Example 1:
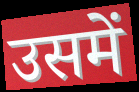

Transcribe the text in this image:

उसमें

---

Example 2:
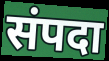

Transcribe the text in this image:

संपदा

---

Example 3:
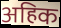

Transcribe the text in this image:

अहिक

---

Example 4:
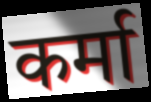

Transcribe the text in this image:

कर्मा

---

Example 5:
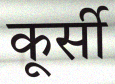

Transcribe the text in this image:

कूर्सी